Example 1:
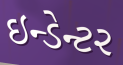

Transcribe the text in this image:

ઇન્ડેન્ટર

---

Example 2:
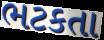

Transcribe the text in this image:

ભટકતા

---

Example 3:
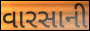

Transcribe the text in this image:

વારસાની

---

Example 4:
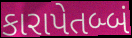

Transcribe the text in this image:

કારાપેતબ્બં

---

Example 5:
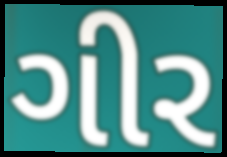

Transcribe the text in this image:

ગીર